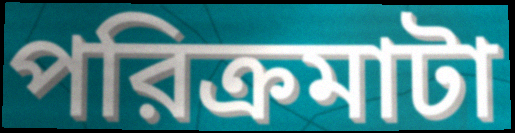
পরিক্রমাটা